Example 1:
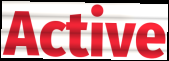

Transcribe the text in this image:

Active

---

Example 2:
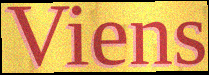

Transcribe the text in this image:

Viens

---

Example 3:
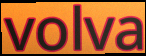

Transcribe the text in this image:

volva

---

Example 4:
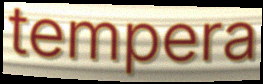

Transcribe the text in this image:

tempera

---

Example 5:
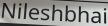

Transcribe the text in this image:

Nileshbhai